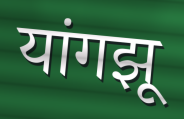
यांगझू